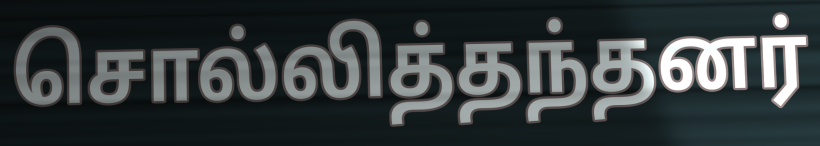
சொல்லித்தந்தனர்